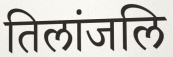
तिलांजलि